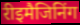
रीइमैजिनिंग